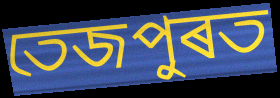
তেজপুৰত